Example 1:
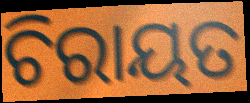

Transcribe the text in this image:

ଚିରାୟତ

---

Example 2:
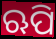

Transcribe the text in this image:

ଋପି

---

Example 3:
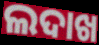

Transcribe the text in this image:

ଲଦାଖ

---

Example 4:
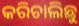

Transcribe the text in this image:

କରିଚାଲିଛୁ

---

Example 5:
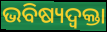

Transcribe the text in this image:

ଭବିଷ୍ୟଦ୍ବକ୍ତା